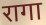
रागा